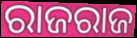
ରାଜରାଜ